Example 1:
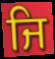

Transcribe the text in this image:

ਜਿ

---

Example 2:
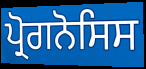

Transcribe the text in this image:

ਪ੍ਰੋਗਨੋਸਿਸ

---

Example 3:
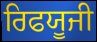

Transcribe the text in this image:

ਰਿਫਯੂਜੀ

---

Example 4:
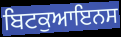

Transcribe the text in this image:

ਬਿਟਕੁਆਇਨਸ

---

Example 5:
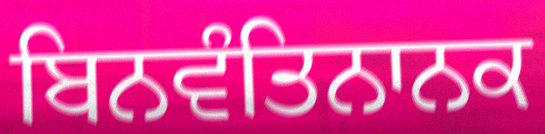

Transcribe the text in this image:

ਬਿਨਵੰਤਿਨਾਨਕ